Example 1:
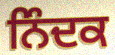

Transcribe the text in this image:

ਨਿੰਦਕ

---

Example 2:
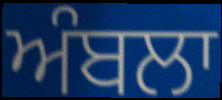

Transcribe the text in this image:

ਅੰਬਲਾ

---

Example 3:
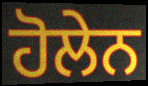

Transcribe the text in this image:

ਹੋਲੇਨ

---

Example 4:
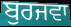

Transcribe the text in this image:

ਬੁਰਜਵਾ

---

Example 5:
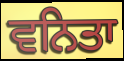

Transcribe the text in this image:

ਵਨਿਤਾ